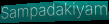
Sampadakiyam